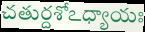
చతుర్దశోఽధ్యాయః